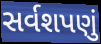
સર્વશપણું